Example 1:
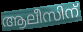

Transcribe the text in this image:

ആലീസിന്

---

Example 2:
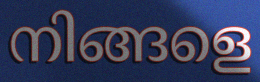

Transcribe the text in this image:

നിങ്ങളെ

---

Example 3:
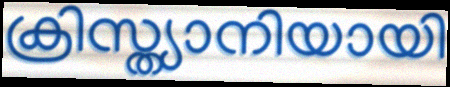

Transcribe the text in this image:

ക്രിസ്ത്യാനിയായി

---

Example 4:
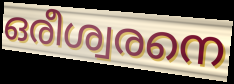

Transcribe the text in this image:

ഒരീശ്വരനെ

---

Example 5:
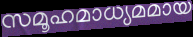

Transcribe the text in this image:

സമൂഹമാധ്യമമായ